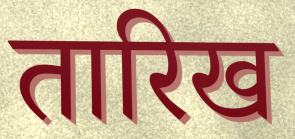
तारिख